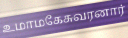
உமாமகேசுவரனார்